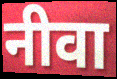
नीवा